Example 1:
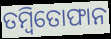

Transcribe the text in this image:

ତମ୍ବିତୋଫାନ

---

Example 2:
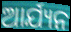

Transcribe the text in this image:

ଆର୍ଯ୍ୟନ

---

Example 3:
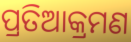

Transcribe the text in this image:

ପ୍ରତିଆକ୍ରମଣ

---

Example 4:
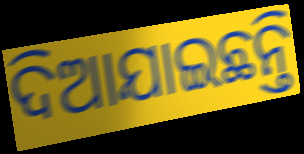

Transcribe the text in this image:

ଦିଆଯାଇଛନ୍ତି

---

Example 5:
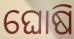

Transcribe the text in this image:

ଘୋଷି